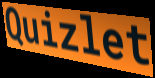
Quizlet